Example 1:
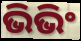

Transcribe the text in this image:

ଭିଭିଂ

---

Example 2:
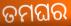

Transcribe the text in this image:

ତମଘର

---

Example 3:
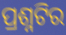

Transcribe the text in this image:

ପ୍ରଶ୍ନଟିର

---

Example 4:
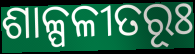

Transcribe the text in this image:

ଶାଳ୍ପଳୀତରୂଃ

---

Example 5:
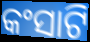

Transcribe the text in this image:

କଂସାଟି